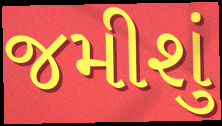
જમીશું